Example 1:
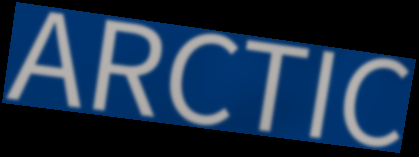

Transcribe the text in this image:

ARCTIC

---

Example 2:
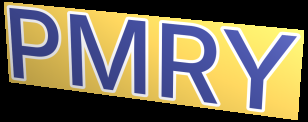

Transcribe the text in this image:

PMRY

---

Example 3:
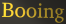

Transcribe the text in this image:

Booing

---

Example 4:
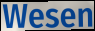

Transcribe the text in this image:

Wesen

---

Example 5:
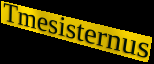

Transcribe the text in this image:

Tmesisternus